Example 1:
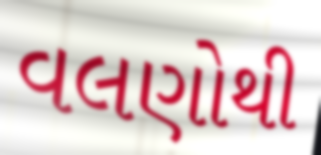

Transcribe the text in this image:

વલણોથી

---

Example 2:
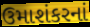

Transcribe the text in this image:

ઉમાશંકરનાં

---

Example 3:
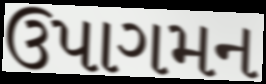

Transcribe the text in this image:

ઉપાગમન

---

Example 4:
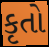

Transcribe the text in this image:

કૃતો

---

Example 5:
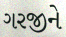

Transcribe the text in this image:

ગરજીને